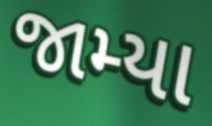
જામ્યા